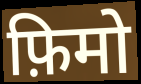
फ़िमो